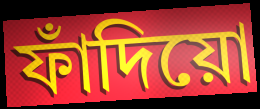
ফাঁদিয়ো